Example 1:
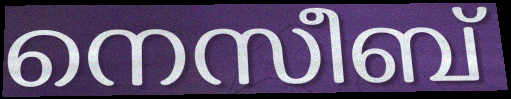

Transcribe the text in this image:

നെസീബ്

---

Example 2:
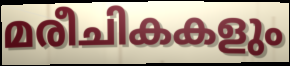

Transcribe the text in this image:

മരീചികകളും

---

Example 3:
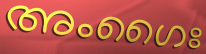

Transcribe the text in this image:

അംഗൈഃ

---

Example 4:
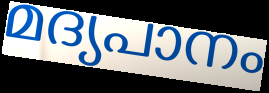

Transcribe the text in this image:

മദ്യപാനം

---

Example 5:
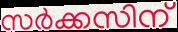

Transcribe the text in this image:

സർക്കസിന്